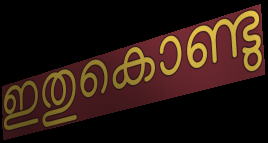
ഇതുകൊണ്ടു